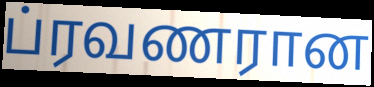
ப்ரவணரான